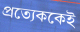
প্রত্যেককেই